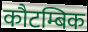
कौटम्बिक